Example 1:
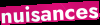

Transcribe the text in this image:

nuisances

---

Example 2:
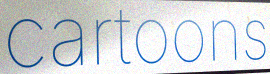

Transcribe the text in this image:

cartoons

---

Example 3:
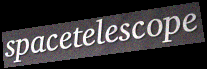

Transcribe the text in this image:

spacetelescope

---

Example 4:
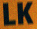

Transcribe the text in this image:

LK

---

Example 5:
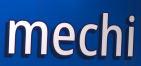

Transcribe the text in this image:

mechi